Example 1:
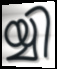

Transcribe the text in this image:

യ്യി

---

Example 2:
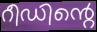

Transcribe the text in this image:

റീഡിന്റെ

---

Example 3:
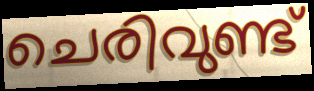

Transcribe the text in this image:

ചെരിവുണ്ട്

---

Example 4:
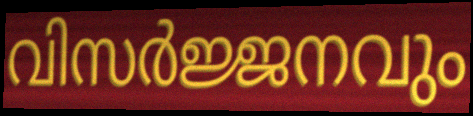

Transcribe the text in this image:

വിസർജ്ജനവും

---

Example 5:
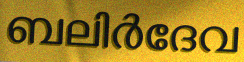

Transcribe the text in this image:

ബലിർദേവ